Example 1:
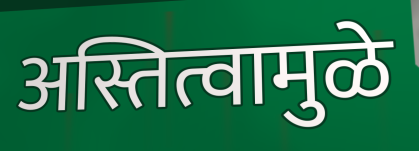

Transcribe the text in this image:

अस्तित्वामुळे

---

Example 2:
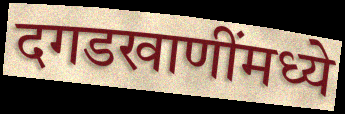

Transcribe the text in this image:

दगडखाणींमध्ये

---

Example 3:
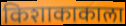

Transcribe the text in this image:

किशाकाकाला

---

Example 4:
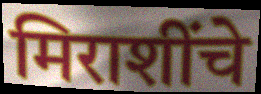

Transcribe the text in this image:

मिराशींचे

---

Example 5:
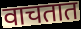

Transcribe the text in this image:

वाचतात